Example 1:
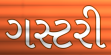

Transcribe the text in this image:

ગસ્ટરી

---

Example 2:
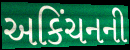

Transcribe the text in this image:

અકિંચનની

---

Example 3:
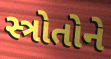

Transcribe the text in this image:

સ્ત્રોતોને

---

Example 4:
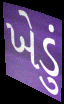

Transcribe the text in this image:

ખેડું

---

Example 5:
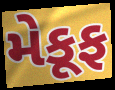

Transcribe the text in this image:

મેકૂફ